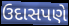
ઉદાસપણે